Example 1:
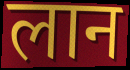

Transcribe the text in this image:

लान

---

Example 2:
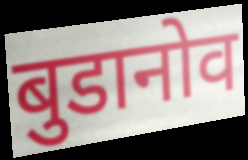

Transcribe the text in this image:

बुडानोव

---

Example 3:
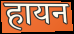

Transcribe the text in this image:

हायन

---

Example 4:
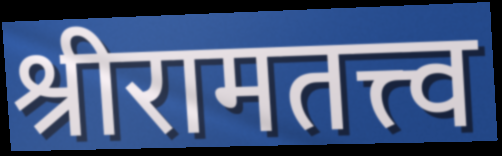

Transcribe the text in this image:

श्रीरामतत्त्व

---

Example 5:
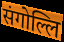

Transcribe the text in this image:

संगोल्लि